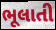
ભૂલાતી